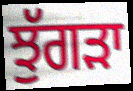
ਝੁੱਗੜਾ